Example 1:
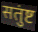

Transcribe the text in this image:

सतुंष्ट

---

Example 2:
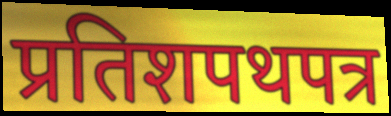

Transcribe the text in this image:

प्रतिशपथपत्र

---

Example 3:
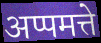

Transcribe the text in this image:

अप्पमत्ते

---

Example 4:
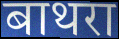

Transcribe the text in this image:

बाथरा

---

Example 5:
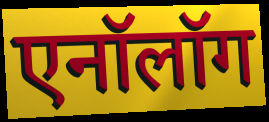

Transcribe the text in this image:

एनॉलॉग